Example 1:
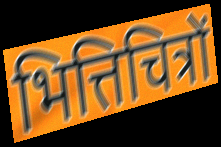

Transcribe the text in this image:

भित्तिचित्रों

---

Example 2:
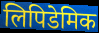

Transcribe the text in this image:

लिपिडेमिक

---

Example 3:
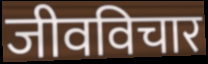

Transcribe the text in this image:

जीवविचार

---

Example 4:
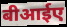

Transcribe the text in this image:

बीआईए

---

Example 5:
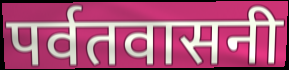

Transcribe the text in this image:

पर्वतवासनी